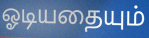
ஓடியதையும்